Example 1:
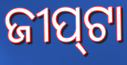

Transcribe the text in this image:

ଜୀପ୍‍ଟା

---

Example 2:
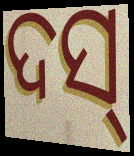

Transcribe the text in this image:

ଦସ୍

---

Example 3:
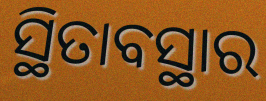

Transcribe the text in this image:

ସ୍ଥିତାବସ୍ଥାର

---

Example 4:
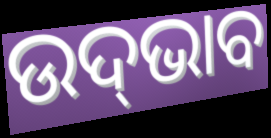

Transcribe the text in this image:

ଉଦ୍‍ଭାବ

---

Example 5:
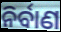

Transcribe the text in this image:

ନିର୍ବାଣ